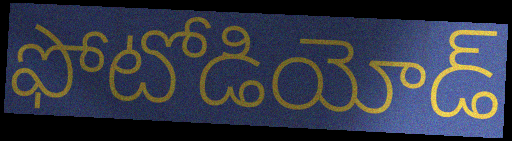
ఫోటోడియోడ్